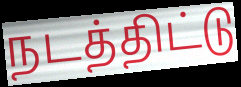
நடத்திட்டு